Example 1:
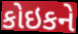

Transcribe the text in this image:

કોઇકને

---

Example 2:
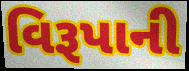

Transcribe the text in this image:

વિરૂપાની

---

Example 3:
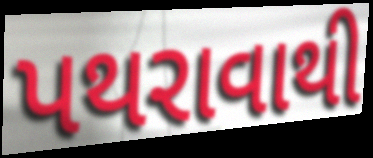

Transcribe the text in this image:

પથરાવાથી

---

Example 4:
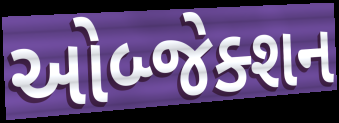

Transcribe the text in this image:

ઓબ્જેક્શન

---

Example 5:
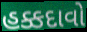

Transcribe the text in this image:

હક્કદાવો